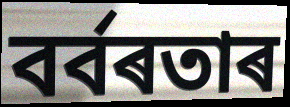
বৰ্বৰতাৰ